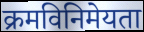
क्रमविनिमेयता